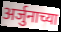
अर्जुनाच्या